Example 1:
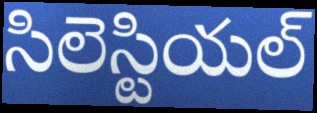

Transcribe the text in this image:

సిలెస్టియల్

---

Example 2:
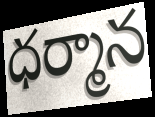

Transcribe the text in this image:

ధర్మాన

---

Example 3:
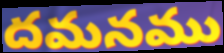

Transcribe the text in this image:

దమనము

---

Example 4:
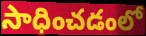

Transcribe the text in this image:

సాధించడంలో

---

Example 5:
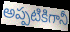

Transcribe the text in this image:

అప్పటికిగానీ